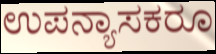
ಉಪನ್ಯಾಸಕರೂ